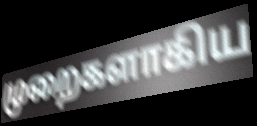
முறைகளாகிய